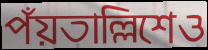
পঁয়তাল্লিশেও